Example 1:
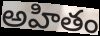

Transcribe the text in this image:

అహితం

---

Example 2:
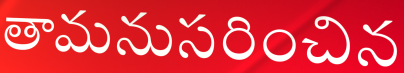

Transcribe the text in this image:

తామనుసరించిన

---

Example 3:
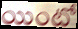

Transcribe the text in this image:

యింటో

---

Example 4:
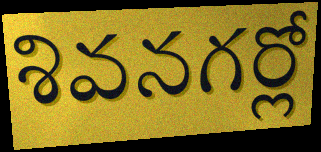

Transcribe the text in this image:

శివనగర్లో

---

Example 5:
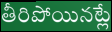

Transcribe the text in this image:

తీరిపోయినట్లే